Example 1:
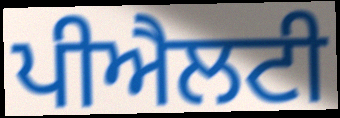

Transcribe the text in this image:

ਪੀਐਲਟੀ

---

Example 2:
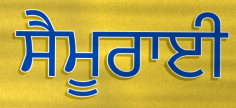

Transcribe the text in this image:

ਸੈਮੂਰਾਈ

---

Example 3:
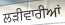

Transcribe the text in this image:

ਲੜੀਵਾਰੀਆਂ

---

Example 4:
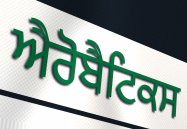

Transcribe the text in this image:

ਐਰੋਬੈਟਿਕਸ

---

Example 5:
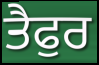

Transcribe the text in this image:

ਤੈਫੁਰ